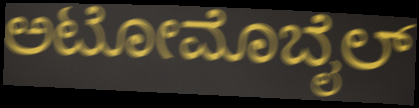
ಅಟೋಮೊಬೈಲ್